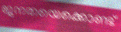
ജനതയെക്കൊണ്ട്